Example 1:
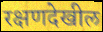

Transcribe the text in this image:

रक्षणदेखील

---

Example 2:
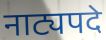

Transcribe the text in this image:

नाट्यपदे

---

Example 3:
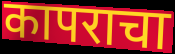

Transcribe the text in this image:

कापराचा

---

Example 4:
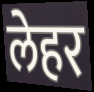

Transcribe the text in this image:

लेहर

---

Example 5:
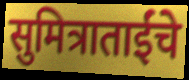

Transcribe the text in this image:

सुमित्राताईंचे